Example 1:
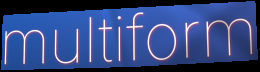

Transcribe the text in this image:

multiform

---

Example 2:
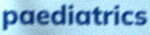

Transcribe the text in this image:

paediatrics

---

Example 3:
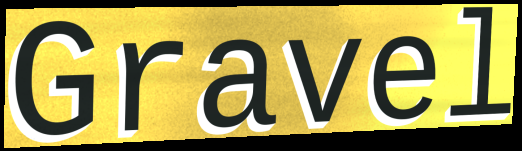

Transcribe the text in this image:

Gravel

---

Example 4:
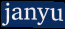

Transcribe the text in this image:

janyu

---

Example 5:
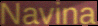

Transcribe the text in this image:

Navina